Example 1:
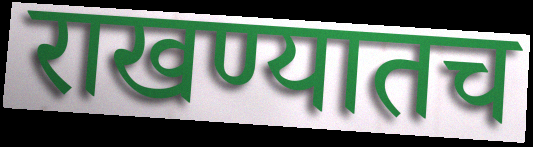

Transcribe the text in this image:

राखण्यातच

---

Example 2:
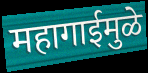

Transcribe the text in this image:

महागाईमुळे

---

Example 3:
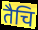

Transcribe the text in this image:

तैचि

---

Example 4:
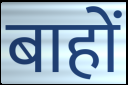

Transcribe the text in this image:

बाहों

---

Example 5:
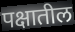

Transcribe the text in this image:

पक्षातील